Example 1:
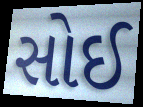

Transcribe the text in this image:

સોઈ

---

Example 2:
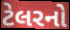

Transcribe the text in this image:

ટેલરનો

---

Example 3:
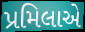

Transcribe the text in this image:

પ્રમિલાએ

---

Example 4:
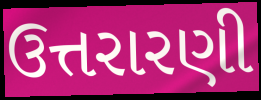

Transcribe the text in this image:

ઉત્તરારણી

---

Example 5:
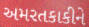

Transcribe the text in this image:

અમરતકાકીને